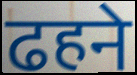
ढहने